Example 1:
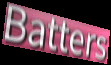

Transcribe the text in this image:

Batters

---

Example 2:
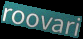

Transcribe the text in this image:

roovari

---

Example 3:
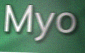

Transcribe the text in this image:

Myo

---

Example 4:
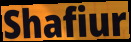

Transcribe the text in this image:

Shafiur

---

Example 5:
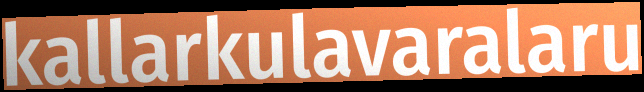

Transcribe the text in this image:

kallarkulavaralaru